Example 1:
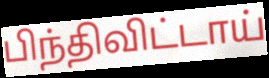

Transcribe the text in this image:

பிந்திவிட்டாய்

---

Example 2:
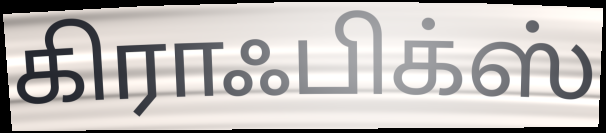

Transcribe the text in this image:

கிராஃபிக்ஸ்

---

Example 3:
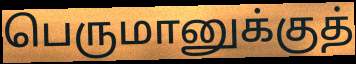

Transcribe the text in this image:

பெருமானுக்குத்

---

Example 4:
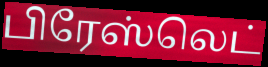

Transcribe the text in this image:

பிரேஸ்லெட்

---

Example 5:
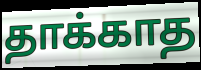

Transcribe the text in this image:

தாக்காத